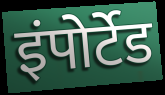
इंपोर्टेड